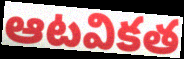
ఆటవికత